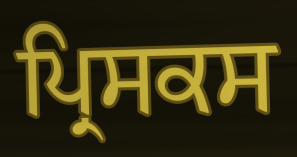
ਪ੍ਰਿਸਕਸ